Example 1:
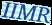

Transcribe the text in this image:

IIMR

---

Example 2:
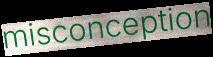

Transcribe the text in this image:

misconception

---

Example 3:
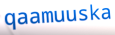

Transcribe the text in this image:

qaamuuska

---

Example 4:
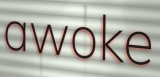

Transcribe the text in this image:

awoke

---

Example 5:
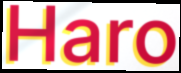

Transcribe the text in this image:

Haro